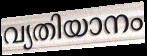
വ്യതിയാനം